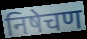
निषेचण